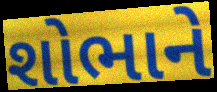
શોભાને